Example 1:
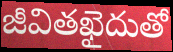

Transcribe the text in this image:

జీవితఖైదుతో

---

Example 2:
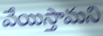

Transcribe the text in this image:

వేయిస్తామని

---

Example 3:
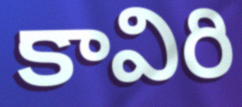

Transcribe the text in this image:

కావిరి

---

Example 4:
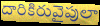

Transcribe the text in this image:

దారికిరువైపులా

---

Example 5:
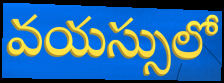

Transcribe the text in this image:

వయస్సులో